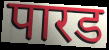
पारड